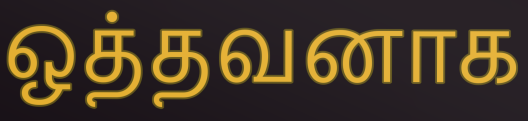
ஒத்தவனாக